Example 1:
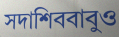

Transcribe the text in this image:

সদাশিববাবুও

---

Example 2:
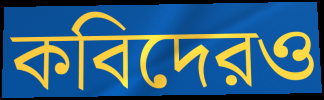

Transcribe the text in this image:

কবিদেরও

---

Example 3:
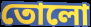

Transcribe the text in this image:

তোলো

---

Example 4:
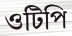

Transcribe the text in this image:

ওটিপি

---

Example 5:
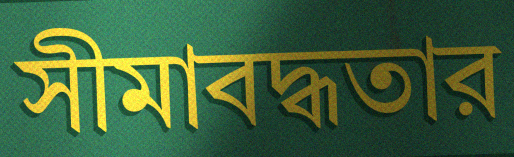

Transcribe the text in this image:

সীমাবদ্ধতার